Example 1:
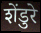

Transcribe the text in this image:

शेंडुरे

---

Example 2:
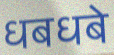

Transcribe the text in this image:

धबधबे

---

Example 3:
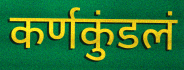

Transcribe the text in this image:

कर्णकुंडलं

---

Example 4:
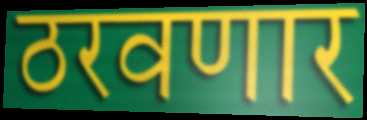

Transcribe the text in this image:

ठरवणार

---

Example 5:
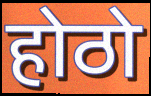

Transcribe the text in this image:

होठो